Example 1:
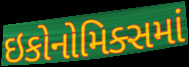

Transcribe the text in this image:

ઇકોનોમિક્સમાં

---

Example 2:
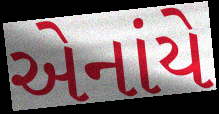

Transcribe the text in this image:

એનાંયે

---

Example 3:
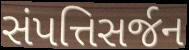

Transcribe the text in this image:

સંપત્તિસર્જન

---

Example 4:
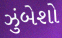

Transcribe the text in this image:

ઝુંબેશો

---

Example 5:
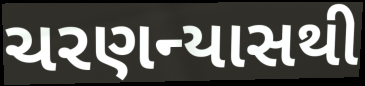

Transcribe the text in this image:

ચરણન્યાસથી